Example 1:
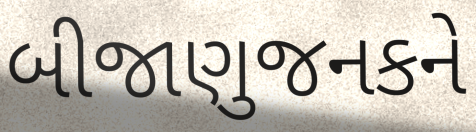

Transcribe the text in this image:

બીજાણુજનકને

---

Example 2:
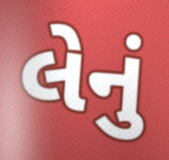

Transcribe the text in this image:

લેનું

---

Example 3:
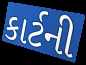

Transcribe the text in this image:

કાર્ટની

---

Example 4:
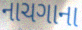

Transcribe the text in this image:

નાચગાના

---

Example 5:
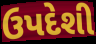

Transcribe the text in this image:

ઉપદેશી